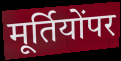
मूर्तियोंपर